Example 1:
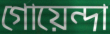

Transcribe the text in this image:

গোয়েন্দা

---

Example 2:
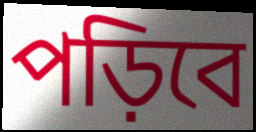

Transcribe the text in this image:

পড়িবে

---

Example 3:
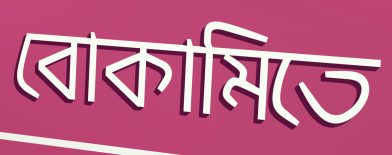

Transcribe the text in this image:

বোকামিতে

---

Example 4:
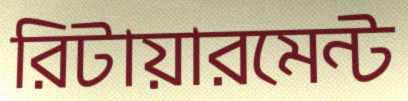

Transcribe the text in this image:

রিটায়ারমেন্ট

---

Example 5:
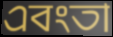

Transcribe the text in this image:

এবংতা